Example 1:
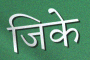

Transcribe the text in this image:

जिके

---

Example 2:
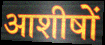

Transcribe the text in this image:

आशीषों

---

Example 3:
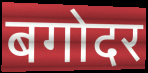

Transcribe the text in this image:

बगोदर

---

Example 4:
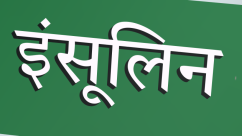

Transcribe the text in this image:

इंसूलिन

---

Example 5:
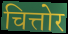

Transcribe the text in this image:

चित्तोर